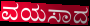
ವಯಸಾದ